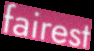
fairest